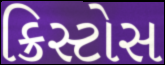
ક્રિસ્ટોસ